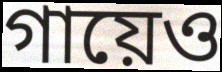
গায়েও